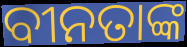
ବୀନତାଙ୍କ